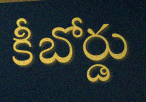
కీబోర్డు